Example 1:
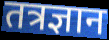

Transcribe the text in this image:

तत्रज्ञान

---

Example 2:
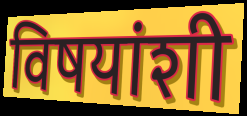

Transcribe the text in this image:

विषयांशी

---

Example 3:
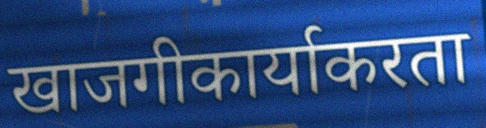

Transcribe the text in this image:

खाजगीकार्याकरता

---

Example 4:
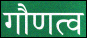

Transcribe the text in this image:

गौणत्व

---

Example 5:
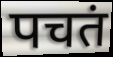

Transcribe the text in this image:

पचतं